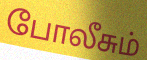
போலீசும்